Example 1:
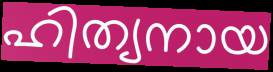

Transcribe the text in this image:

ഹിത്യനായ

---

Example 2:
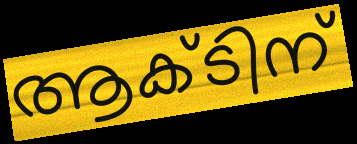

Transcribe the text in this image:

ആക്ടിന്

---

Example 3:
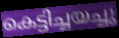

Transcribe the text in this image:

കെട്ടിച്ചയച്ചു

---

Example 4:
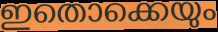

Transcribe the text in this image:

ഇതൊക്കെയും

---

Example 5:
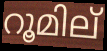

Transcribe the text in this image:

റൂമില്